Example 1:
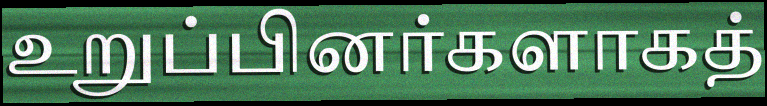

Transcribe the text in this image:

உறுப்பினர்களாகத்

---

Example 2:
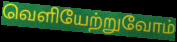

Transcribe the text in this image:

வெளியேற்றுவோம்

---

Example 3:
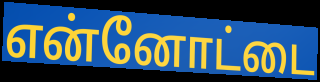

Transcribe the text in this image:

என்னோட்டை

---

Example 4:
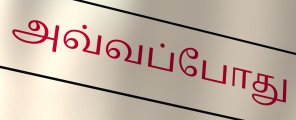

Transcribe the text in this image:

அவ்வப்போது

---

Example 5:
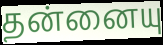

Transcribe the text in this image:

தன்னையு